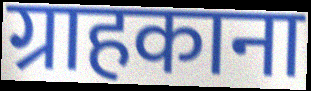
ग्राहकाना